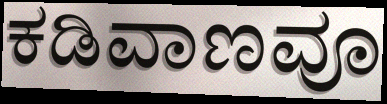
ಕಡಿವಾಣವೂ